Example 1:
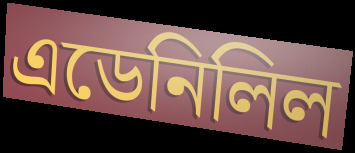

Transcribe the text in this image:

এডেনিলিল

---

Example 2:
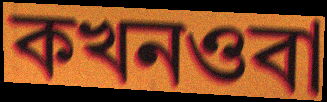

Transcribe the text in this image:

কখনওবা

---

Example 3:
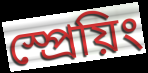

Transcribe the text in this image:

স্প্রেয়িং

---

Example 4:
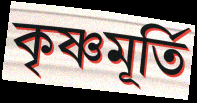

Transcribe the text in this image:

কৃষ্ণমূর্তি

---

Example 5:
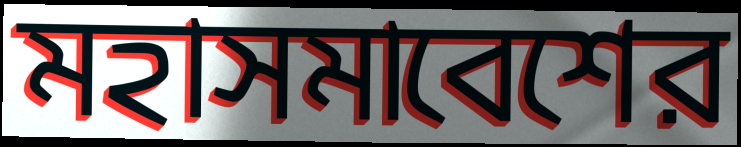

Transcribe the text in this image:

মহাসমাবেশের